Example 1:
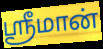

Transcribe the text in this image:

ஸ்ரீமான்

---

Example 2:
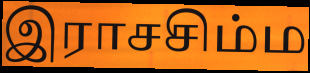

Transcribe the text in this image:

இராசசிம்ம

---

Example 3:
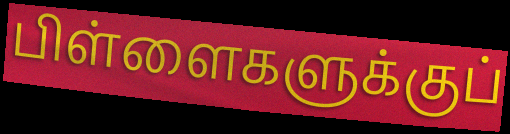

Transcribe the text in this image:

பிள்ளைகளுக்குப்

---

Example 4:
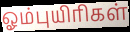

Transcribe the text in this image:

ஓம்புயிரிகள்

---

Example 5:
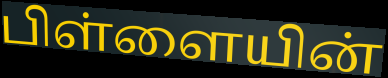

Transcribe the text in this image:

பிள்ளையின்